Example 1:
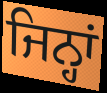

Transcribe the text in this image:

ਜਿਨ੍ਹਾਂ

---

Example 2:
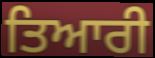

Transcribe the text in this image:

ਤਿਆਰੀ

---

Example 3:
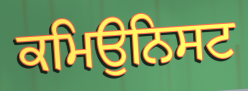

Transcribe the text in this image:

ਕਮਿਉਨਿਸਟ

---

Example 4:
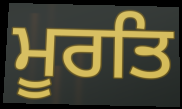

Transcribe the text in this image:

ਮੂਰਤਿ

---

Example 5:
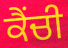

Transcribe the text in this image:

ਕੈਂਚੀ